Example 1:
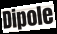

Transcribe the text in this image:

Dipole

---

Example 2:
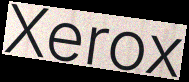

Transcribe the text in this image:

Xerox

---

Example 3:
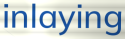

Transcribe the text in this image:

inlaying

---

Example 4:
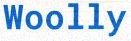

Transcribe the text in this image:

Woolly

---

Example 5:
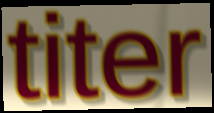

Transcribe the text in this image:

titer